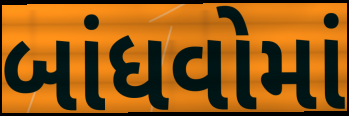
બાંધવોમાં